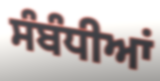
ਸੰਬੰਧੀਆਂ